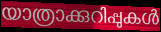
യാത്രാക്കുറിപ്പുകൾ